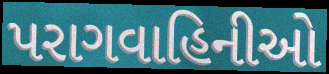
પરાગવાહિનીઓ